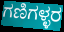
ಗಣಿಗಳ್ಳರ